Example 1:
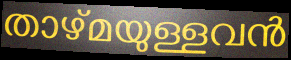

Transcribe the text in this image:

താഴ്മയുള്ളവൻ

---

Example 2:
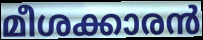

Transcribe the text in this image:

മീശക്കാരൻ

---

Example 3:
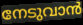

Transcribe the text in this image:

നേടുവാൻ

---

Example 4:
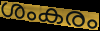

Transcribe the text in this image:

ശംകരം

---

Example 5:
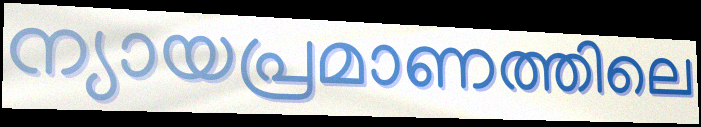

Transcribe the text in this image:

ന്യായപ്രമാണത്തിലെ